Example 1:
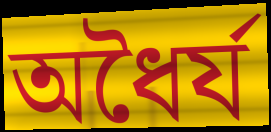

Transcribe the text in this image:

অধৈর্য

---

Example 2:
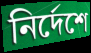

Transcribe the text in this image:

নির্দেশে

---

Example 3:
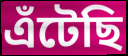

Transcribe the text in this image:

এঁটেছি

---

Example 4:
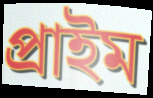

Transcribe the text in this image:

প্রাইম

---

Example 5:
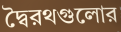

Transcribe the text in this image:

দ্বৈরথগুলোর